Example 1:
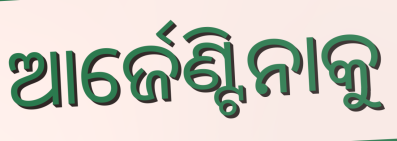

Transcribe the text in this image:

ଆର୍ଜେଣ୍ଟିନାକୁ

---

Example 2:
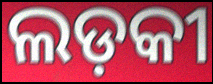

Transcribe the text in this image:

ଲଡ଼କୀ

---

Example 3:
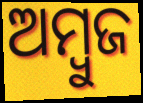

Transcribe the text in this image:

ଅମ୍ବୁଜ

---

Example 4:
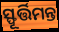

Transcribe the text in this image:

ସ୍ଫୂର୍ତ୍ତିମନ୍ତ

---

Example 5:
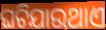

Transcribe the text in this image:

ଘଟିଯାଉଥାଏ